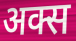
अक्स